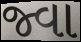
જ્વા